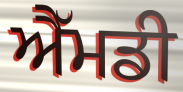
ਐੱਮਡੀ